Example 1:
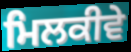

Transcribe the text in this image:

ਮਿਲਕੀਵੇ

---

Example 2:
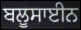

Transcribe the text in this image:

ਬਲੂਸਾਈਨ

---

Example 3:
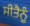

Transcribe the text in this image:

ਸੀਤੈਨੂੰ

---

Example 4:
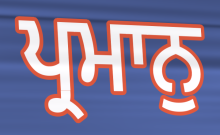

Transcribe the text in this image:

ਪ੍ਰਮਾਨੁ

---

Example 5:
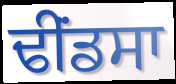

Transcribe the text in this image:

ਢੀੰਂਡਸਾ